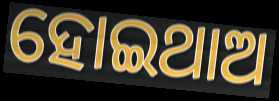
ହୋଇଥାଅ